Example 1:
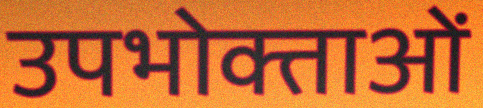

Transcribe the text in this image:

उपभोक्ताओं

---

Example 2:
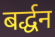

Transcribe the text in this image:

बर्द्धन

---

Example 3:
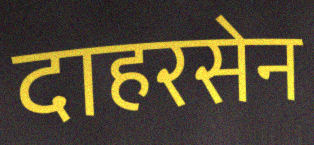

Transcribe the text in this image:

दाहरसेन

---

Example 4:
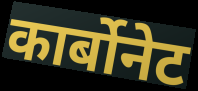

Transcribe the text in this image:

कार्बोनेट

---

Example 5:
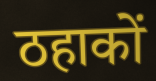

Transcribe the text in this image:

ठहाकों